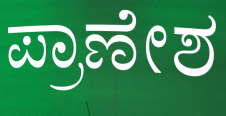
ಪ್ರಾಣೇಶ